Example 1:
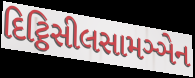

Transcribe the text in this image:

દિટ્ઠિસીલસામઞ્ઞેન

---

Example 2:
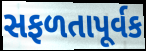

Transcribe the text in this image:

સફળતાપૂર્વક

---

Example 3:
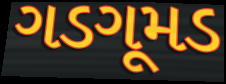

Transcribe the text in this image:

ગડગૂમડ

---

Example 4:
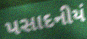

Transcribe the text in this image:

પસાદનીયં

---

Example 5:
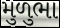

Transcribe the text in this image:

મુળુભા